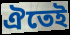
ঐতেই